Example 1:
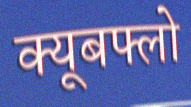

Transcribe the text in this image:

क्यूबफ्लो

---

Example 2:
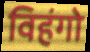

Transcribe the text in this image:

विहंगो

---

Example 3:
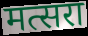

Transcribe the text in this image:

मत्सरा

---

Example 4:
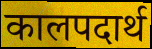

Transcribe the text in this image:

कालपदार्थ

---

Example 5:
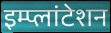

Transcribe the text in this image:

इम्प्लांटेशन